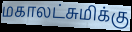
மகாலட்சுமிக்கு